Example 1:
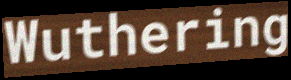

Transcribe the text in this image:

Wuthering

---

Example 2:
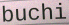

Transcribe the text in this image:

buchi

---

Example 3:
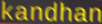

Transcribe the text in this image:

kandhan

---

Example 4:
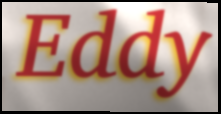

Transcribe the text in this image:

Eddy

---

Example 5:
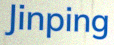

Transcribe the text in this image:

Jinping